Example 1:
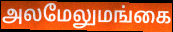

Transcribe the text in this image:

அலமேலுமங்கை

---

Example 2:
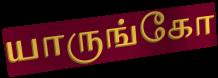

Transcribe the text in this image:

யாருங்கோ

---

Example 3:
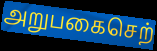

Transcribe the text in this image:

அறுபகைசெற்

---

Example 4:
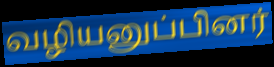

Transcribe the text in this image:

வழியனுப்பினர்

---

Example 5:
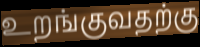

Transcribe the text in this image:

உறங்குவதற்கு